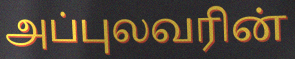
அப்புலவரின்